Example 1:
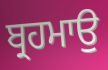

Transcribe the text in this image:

ਬ੍ਰਹਮਾਉ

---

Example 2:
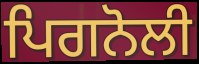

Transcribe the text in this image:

ਪਿਗਨੋਲੀ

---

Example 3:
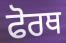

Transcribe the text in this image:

ਫੋਰਥ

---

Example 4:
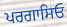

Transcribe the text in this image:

ਪਰਗਾਸਿਓ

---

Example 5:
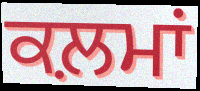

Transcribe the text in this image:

ਕਲ਼ਮਾਂ